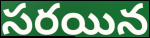
సరయిన